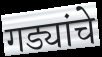
गड्यांचे